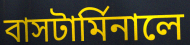
বাসটার্মিনালে